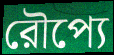
রৌপ্যে